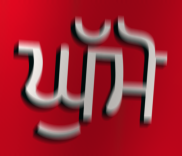
ਘੁੱਮੋ